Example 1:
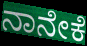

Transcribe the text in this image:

ನಾನೇಕೆ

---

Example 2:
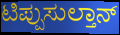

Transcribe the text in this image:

ಟಿಪ್ಪುಸುಲ್ತಾನ್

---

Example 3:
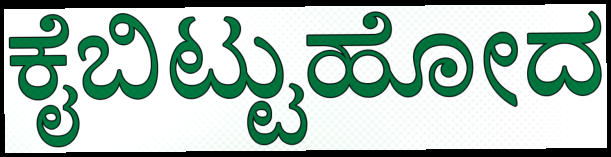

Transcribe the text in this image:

ಕೈಬಿಟ್ಟುಹೋದ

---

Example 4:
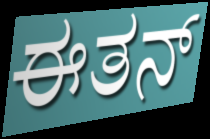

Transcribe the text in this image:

ಈತನ್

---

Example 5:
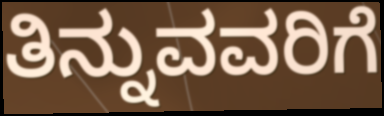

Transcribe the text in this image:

ತಿನ್ನುವವರಿಗೆ